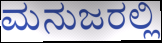
ಮನುಜರಲ್ಲಿ